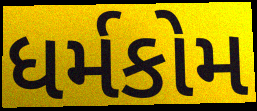
ધર્મકોમ